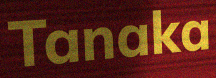
Tanaka